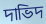
দাভিদ